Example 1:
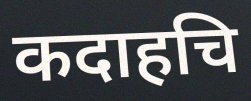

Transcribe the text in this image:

कदाहचि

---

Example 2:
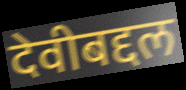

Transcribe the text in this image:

देवीबद्दल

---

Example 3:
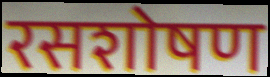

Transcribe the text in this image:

रसशोषण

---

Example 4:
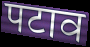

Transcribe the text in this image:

पटाव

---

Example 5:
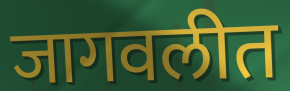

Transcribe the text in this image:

जागवलीत